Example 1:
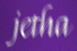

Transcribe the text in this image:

jetha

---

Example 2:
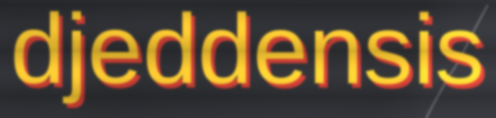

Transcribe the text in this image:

djeddensis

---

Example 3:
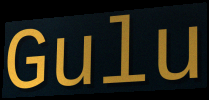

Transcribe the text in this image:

Gulu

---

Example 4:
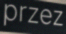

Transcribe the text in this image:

przez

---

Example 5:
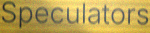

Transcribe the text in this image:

Speculators